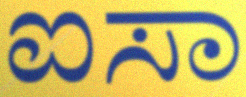
ಐಸಾ